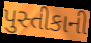
પુસ્તીકાની